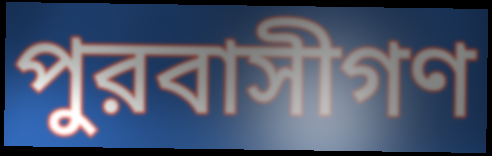
পুরবাসীগণ